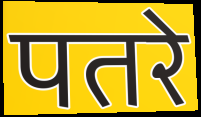
पतरे